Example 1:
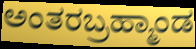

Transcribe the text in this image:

ಅಂತರಬ್ರಹ್ಮಾಂಡ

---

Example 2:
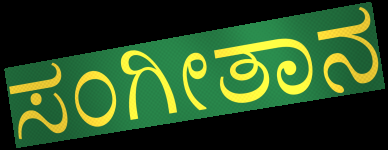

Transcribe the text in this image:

ಸಂಗೀತಾನ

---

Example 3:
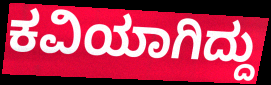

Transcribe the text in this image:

ಕವಿಯಾಗಿದ್ದು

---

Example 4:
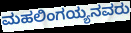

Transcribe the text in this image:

ಮಹಲಿಂಗಯ್ಯನವರು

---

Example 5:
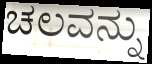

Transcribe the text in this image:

ಚಲವನ್ನು